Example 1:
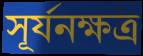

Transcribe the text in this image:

সূর্যনক্ষত্র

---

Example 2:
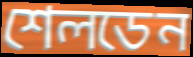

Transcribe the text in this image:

শেলডেন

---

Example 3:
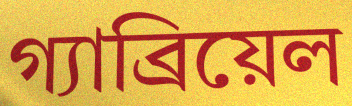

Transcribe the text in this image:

গ্যাব্রিয়েল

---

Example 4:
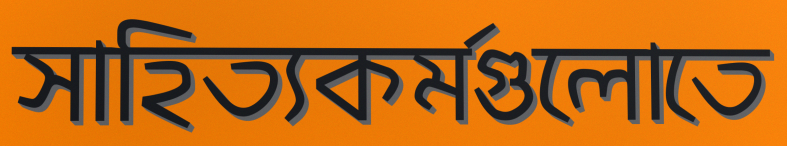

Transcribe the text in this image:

সাহিত্যকর্মগুলোতে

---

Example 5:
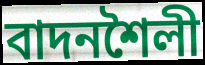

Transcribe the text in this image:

বাদনশৈলী